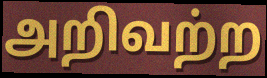
அறிவற்ற